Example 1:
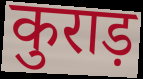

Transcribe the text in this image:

कुराड़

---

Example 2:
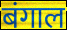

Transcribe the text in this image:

बंगाल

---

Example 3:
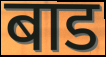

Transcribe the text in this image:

बाड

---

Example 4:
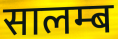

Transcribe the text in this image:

सालम्ब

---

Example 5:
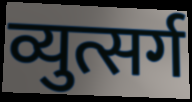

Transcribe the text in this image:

व्युत्सर्ग